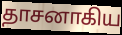
தாசனாகிய